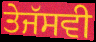
ਤੇਜੱਸਵੀ